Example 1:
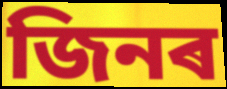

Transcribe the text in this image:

জিনৰ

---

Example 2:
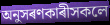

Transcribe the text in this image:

অনুসৰণকাৰীসকলে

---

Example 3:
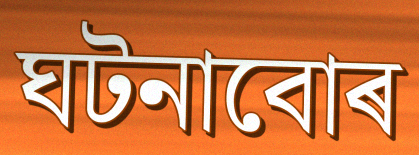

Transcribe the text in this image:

ঘটনাবোৰ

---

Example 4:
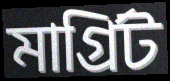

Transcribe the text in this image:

মাৰ্গ্ৰিট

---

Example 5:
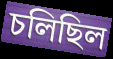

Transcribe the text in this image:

চলিছিল